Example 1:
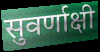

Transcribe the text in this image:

सुवर्णाक्षी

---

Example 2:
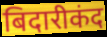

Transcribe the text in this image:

बिदारीकंद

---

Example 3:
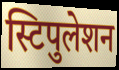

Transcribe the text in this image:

स्टिपुलेशन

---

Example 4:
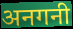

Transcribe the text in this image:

अनगनी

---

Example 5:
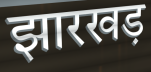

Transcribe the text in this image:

झारखड़